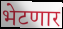
भेटणार